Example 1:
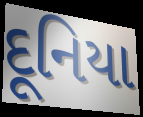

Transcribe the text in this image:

દૂનિયા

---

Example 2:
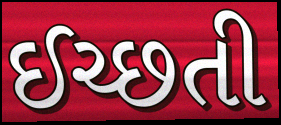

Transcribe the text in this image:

ઈચ્છતી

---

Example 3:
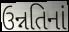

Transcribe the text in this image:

ઉન્નતિનાં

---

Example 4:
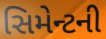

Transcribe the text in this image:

સિમેન્ટની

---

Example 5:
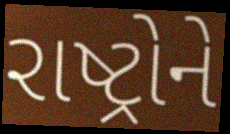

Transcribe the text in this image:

રાષ્ટ્રોને